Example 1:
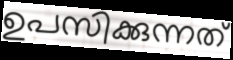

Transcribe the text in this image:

ഉപസിക്കുന്നത്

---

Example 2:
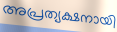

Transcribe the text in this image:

അപ്രത്യക്ഷനായി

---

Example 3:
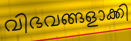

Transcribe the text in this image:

വിഭവങ്ങളാക്കി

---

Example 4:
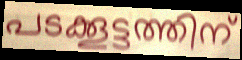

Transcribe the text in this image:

പടക്കൂട്ടത്തിന്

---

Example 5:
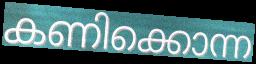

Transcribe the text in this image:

കണിക്കൊന്ന